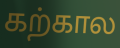
கற்கால